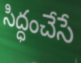
సిద్ధంచేసే